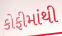
કોફીમાંથી